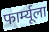
फार्म्यूला